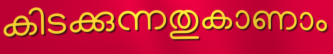
കിടക്കുന്നതുകാണാം